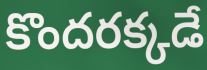
కొందరక్కడే